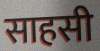
साहसी